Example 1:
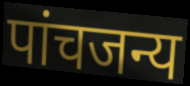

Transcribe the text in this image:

पांचजन्य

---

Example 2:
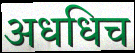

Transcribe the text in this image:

अधधिच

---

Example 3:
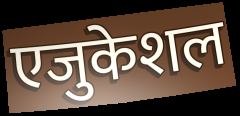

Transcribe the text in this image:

एजुकेशल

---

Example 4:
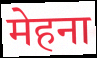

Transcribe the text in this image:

मेहना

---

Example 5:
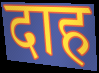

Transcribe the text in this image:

दाह